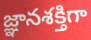
జ్ఞానశక్తిగా